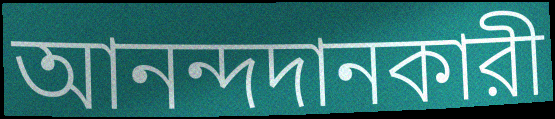
আনন্দদানকারী